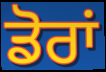
ਡੋਰਾਂ